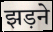
झड़ने